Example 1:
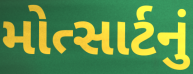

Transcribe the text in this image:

મોત્સાર્ટનું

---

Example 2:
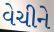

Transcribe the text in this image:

વેચીને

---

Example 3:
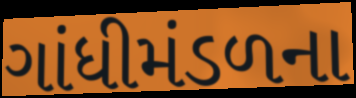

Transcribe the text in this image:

ગાંધીમંડળના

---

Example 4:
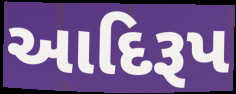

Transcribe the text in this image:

આદિરૂપ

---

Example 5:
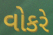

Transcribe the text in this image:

વોકરે